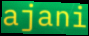
ajani